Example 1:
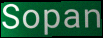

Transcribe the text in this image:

Sopan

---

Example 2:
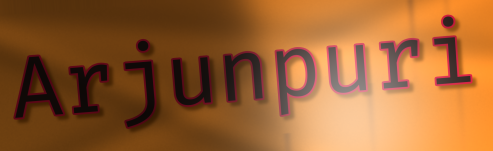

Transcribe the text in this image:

Arjunpuri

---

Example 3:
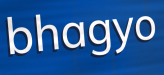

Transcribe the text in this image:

bhagyo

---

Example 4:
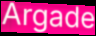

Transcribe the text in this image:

Argade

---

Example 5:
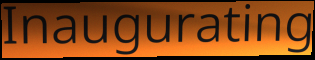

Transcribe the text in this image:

Inaugurating